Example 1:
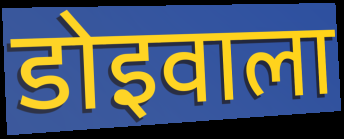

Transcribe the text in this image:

डोइवाला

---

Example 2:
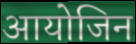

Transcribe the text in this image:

आयोजिन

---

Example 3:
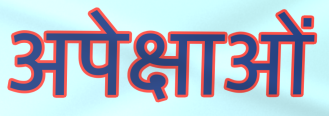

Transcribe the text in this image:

अपेक्षाओं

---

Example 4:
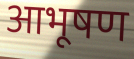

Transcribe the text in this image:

आभूषण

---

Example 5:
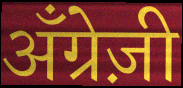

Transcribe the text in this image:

अँग्रेज़ी